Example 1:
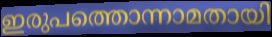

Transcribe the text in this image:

ഇരുപത്തൊന്നാമതായി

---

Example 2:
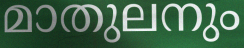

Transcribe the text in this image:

മാതുലനും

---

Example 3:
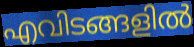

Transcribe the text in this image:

എവിടങ്ങളിൽ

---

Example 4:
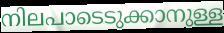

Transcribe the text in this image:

നിലപാടെടുക്കാനുള്ള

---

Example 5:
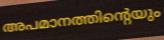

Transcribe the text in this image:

അപമാനത്തിന്റെയും